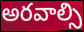
అరవాల్సి